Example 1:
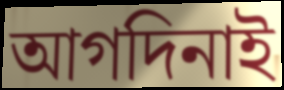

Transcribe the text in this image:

আগদিনাই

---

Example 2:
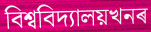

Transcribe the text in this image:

বিশ্ববিদ্যালয়খনৰ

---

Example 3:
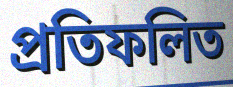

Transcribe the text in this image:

প্ৰতিফলিত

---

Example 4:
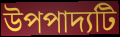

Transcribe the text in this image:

উপপাদ্যটি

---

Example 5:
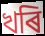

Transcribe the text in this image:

খৰি